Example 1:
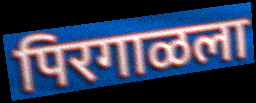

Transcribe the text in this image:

पिरगाळला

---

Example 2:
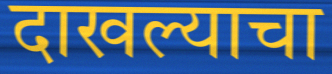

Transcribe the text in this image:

दाखल्याचा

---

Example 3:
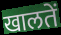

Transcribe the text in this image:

खालतें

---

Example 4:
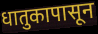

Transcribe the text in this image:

धातुकापासून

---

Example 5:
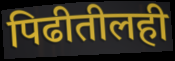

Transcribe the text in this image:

पिढीतीलही